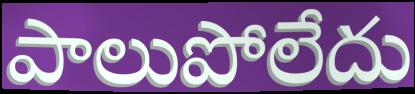
పాలుపోలేదు